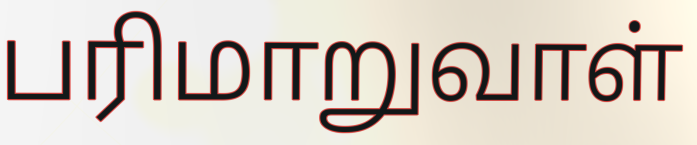
பரிமாறுவாள்